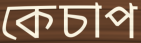
কেচাপ